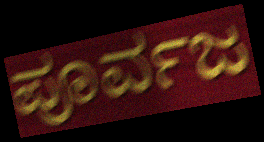
ಪೂರ್ವಜ